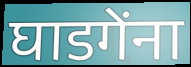
घाडगेंना